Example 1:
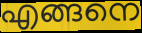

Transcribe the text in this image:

എങ്ങനെ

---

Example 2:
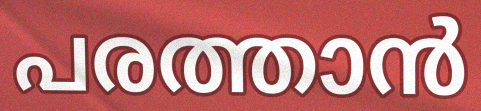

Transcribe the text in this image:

പരത്താൻ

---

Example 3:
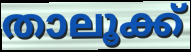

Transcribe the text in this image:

താലൂക്ക്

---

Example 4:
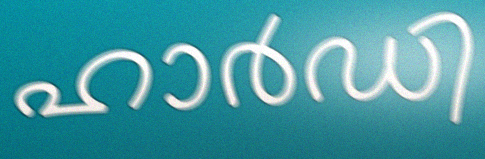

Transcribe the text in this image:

ഹാർഡി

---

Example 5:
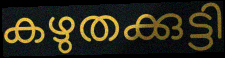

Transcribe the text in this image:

കഴുതക്കുട്ടി